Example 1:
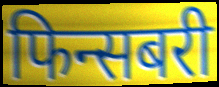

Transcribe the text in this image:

फिन्सबरी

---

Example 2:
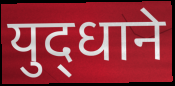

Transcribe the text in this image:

युद्धाने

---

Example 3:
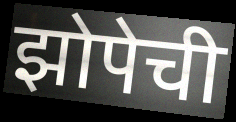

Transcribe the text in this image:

झोपेची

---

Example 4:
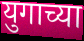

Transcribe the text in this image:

युगाच्या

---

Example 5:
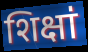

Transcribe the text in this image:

शिक्षा॑